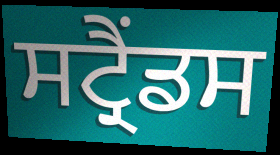
ਸਟ੍ਰੈਂਡਸ